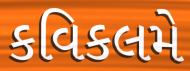
કવિકલમે